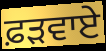
ਫ਼ੜਵਾਏ